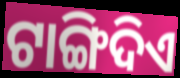
ଟାଙ୍ଗିଦିଏ